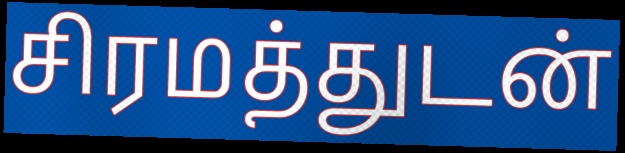
சிரமத்துடன்